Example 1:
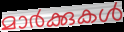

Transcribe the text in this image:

മാർക്കുകൾ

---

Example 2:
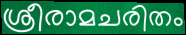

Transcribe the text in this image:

ശ്രീരാമചരിതം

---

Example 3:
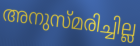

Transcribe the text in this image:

അനുസ്മരിച്ചില്ല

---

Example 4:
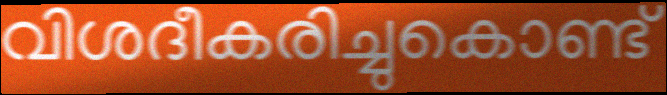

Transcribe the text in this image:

വിശദീകരിച്ചുകൊണ്ട്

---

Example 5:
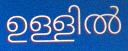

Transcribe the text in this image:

ഉള്ളിൽ